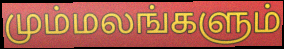
மும்மலங்களும்